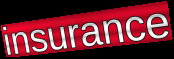
insurance